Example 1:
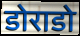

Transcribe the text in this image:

डोराडो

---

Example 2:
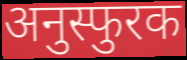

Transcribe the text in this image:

अनुस्फुरक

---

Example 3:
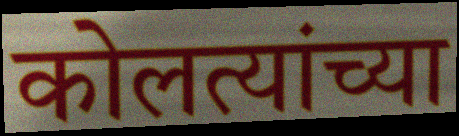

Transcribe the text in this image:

कोलत्यांच्या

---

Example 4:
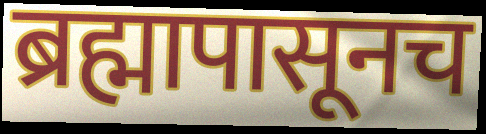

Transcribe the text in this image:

ब्रह्मापासूनच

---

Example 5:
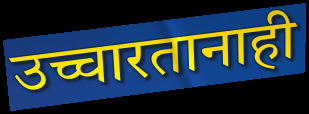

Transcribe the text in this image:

उच्चारतानाही